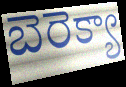
బెరెక్యా